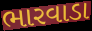
ભારવાડા